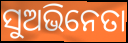
ସୁଅଭିନେତା